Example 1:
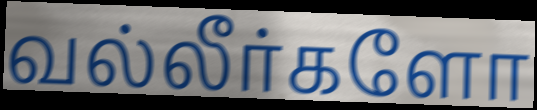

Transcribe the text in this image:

வல்லீர்களோ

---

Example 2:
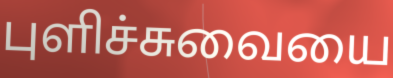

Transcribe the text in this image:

புளிச்சுவையை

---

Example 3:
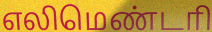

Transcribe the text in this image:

எலிமெண்டரி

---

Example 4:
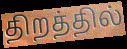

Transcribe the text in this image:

திறத்தில்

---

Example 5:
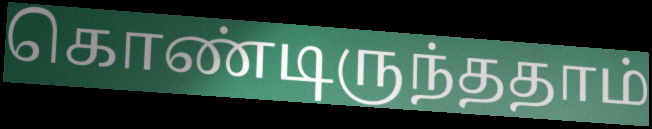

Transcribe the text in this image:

கொண்டிருந்ததாம்